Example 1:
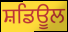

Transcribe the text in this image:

ਸ਼ਡਿਊਲ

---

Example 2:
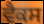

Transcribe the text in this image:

ਵੈਕਸ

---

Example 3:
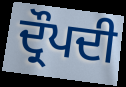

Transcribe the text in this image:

ਦ੍ਰੌਪਦੀ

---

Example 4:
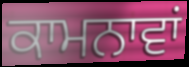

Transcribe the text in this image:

ਕਾਮਨਾਵਾਂ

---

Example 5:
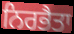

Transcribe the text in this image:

ਨਿਰਭੈਤਾ